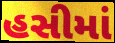
હસીમાં